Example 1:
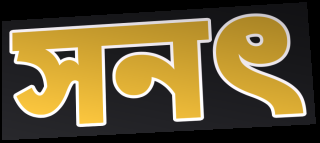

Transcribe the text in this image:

সনৎ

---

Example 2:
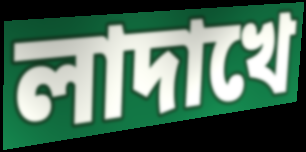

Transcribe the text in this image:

লাদাখে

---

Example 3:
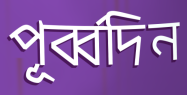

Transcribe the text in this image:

পূর্ব্বদিন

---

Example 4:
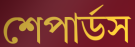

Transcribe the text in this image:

শেপার্ডস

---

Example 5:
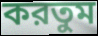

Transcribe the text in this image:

করতুম